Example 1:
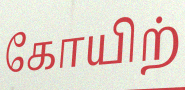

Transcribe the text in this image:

கோயிற்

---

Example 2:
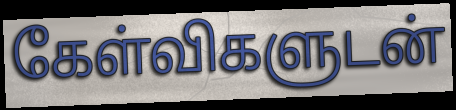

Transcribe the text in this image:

கேள்விகளுடன்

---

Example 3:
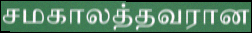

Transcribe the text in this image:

சமகாலத்தவரான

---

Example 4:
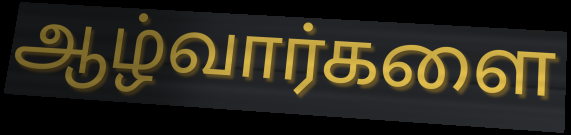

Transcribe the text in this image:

ஆழ்வார்களை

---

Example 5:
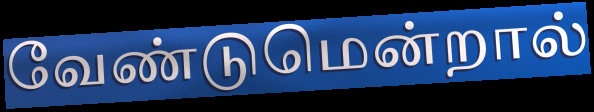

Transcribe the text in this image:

வேண்டுமென்றால்